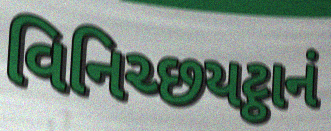
વિનિચ્છયટ્ઠાનં